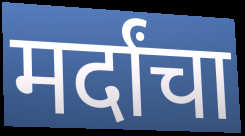
मर्दांचा